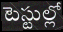
టెస్టుల్లో